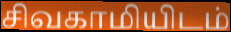
சிவகாமியிடம்